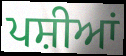
ਪਸ਼ੀਆਂ